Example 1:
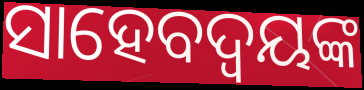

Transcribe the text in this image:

ସାହେବଦ୍ୱୟଙ୍କ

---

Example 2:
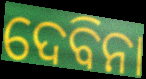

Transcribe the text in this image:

ଦେବିନା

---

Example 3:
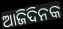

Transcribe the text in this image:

ଆଜିଦିନକ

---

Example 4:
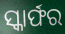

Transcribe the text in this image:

ସ୍କାର୍ଫର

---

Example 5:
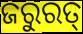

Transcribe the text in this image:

ଜରୁରତ୍